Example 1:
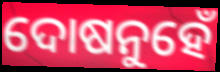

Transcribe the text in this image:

ଦୋଷନୁହେଁ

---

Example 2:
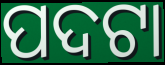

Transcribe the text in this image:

ପଦଟା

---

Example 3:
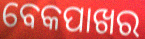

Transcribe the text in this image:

ବେକପାଖର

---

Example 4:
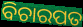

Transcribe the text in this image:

ବିଚାରପତ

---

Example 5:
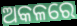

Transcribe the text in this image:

ଅକଳରେ